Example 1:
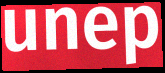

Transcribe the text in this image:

unep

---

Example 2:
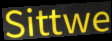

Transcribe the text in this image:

Sittwe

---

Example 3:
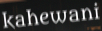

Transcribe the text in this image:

kahewani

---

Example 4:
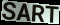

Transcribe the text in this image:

SART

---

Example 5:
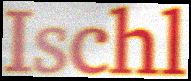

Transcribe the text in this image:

Ischl